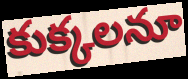
కుక్కలనూ